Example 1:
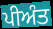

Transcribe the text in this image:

ਪੀਅੰਤ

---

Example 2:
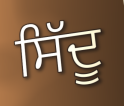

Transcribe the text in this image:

ਸਿੱਦੂ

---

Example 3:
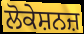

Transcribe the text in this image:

ਲੋਕੇਸ਼ਨਜ਼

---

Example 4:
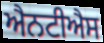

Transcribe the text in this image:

ਐਨਟੀਐਸ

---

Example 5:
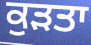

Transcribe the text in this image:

ਕੁੜਤਾ